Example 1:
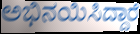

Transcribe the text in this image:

ಅಭಿನಯಿಸಿದ್ದಾರೆ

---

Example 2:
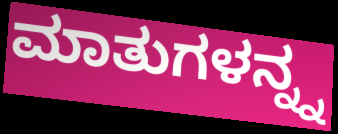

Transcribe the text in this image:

ಮಾತುಗಳನ್ನ್ನ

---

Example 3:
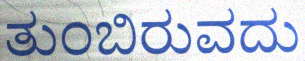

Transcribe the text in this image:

ತುಂಬಿರುವದು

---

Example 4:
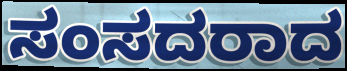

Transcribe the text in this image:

ಸಂಸದರಾದ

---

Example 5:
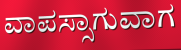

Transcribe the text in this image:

ವಾಪಸ್ಸಾಗುವಾಗ